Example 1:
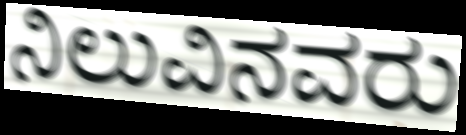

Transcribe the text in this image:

ನಿಲುವಿನವರು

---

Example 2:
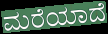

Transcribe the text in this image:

ಮರೆಯಾದೆ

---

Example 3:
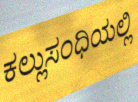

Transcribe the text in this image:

ಕಲ್ಲುಸಂಧಿಯಲ್ಲಿ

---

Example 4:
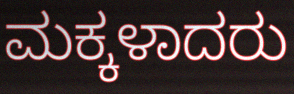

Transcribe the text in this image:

ಮಕ್ಕಳಾದರು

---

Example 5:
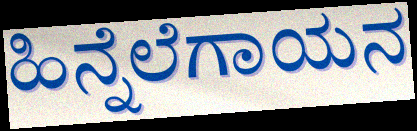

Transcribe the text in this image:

ಹಿನ್ನೆಲೆಗಾಯನ